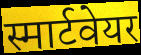
स्मार्टवेयर